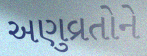
અણુવ્રતોને